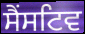
ਸੈਂਸਟਿਵ